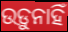
ଉଡ଼ୁନାହିଁ